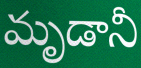
మృడానీ